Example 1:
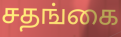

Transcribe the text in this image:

சதங்கை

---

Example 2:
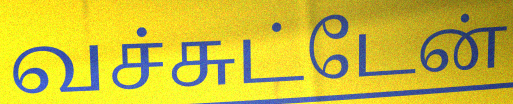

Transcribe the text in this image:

வச்சுட்டேன்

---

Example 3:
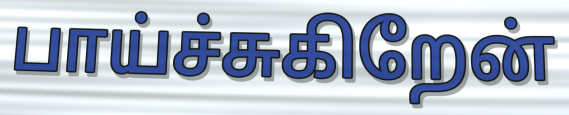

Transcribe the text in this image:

பாய்ச்சுகிறேன்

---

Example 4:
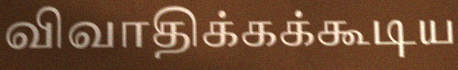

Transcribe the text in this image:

விவாதிக்கக்கூடிய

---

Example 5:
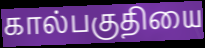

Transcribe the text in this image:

கால்பகுதியை